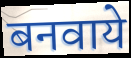
बनवाये